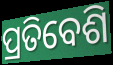
ପ୍ରତିବେଶି